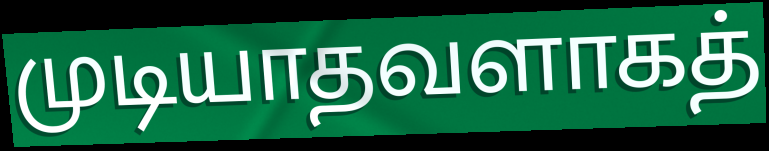
முடியாதவளாகத்